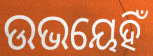
ଉଭୟେହିଁ